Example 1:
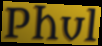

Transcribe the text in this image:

Phul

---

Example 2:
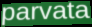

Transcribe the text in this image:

parvata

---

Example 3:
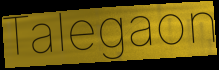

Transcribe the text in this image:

Talegaon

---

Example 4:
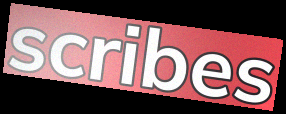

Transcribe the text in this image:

scribes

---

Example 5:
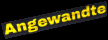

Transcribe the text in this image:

Angewandte